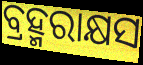
ବ୍ରହ୍ମରାକ୍ଷସ